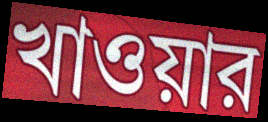
খাওয়ার